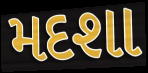
મદશા